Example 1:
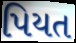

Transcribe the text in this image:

પિયત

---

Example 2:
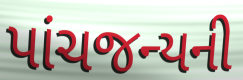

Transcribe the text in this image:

પાંચજન્યની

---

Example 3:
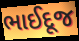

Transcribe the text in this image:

ભાઈદૂજ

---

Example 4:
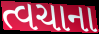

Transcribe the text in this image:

ત્વચાના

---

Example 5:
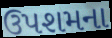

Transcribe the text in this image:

ઉપશમના